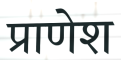
प्राणेश